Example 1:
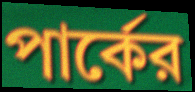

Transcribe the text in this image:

পার্কের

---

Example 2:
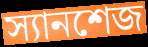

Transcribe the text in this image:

স্যানশেজ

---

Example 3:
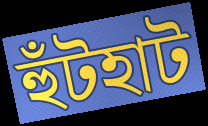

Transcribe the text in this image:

হুঁটহাট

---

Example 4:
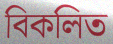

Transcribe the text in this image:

বিকলিত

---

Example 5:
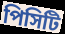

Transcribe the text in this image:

পিসিটি